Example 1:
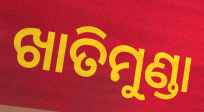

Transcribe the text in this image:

ଖାତିମୁଣ୍ଡା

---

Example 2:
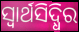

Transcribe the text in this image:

ସ୍ଵାର୍ଥସିଦ୍ଧିର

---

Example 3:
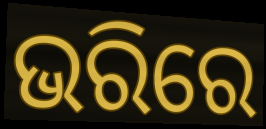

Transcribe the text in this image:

ଭରିରେ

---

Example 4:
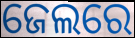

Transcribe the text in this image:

ଜେଲରେ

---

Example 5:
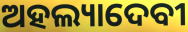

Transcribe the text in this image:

ଅହଲ୍ୟାଦେବୀ